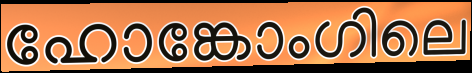
ഹോങ്കോംഗിലെ